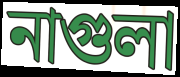
নাগুলা